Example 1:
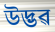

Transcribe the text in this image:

উদ্ভৱ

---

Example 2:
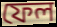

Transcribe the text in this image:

ফেল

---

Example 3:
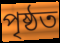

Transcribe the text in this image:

পৃষ্ঠত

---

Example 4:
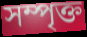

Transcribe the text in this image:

সম্পৃক্ত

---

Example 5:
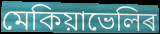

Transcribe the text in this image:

মেকিয়াভেলিৰ